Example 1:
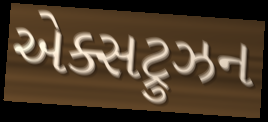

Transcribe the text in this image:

એક્સટ્રુઝન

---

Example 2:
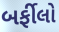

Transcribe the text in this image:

બર્ફીલો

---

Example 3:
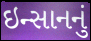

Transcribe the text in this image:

ઇન્સાનનું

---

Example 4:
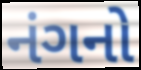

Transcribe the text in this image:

નંગનો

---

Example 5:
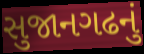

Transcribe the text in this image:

સુજાનગઢનું